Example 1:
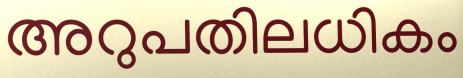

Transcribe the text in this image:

അറുപതിലധികം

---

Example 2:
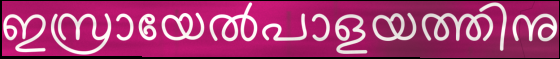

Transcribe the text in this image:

ഇസ്രായേൽപാളയത്തിനു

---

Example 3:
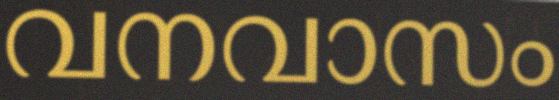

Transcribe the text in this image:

വനവാസം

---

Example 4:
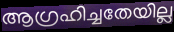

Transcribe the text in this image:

ആഗ്രഹിച്ചതേയില്ല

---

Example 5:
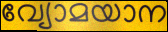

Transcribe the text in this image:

വ്യോമയാന